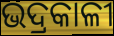
ଭଦ୍ରକାଳୀ